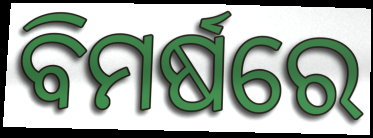
ବିମର୍ଷରେ